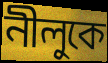
নীলুকে